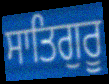
ਸਾਤਿਗੁਰੂ